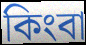
কিংবা